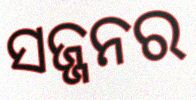
ସଜ୍ଜନର